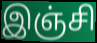
இஞ்சி